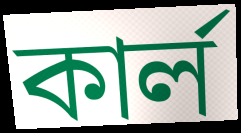
কাৰ্ল